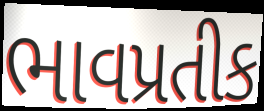
ભાવપ્રતીક